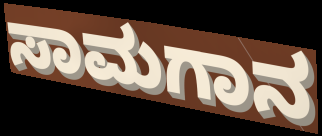
ಸಾಮಗಾನ